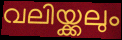
വലിയ്ക്കലും